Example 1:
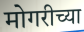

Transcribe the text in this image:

मोगरीच्या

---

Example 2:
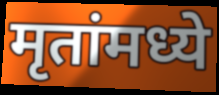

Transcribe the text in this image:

मृतांमध्ये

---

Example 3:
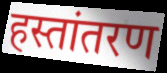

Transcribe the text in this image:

हस्तांतरण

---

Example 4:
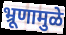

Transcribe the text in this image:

भ्रूणामुळे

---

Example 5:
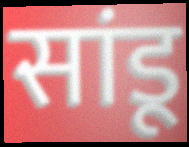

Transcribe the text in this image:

सांडू